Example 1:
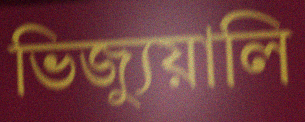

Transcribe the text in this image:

ভিজ্যুয়ালি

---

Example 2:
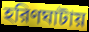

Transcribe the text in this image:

হরিণঘাটায়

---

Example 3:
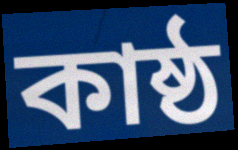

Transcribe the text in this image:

কাষ্ঠ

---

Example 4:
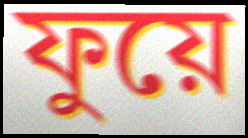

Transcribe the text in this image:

ফুয়ে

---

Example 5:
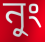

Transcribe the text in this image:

নুং